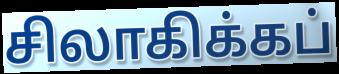
சிலாகிக்கப்